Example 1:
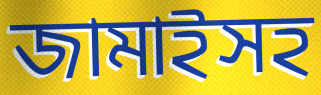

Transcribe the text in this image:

জামাইসহ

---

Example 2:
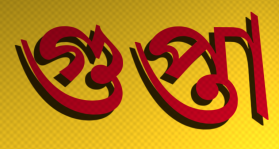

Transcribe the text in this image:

গুপ্তা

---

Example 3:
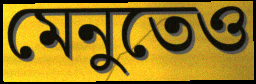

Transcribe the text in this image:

মেনুতেও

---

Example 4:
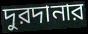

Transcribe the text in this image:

দুরদানার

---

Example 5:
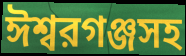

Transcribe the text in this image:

ঈশ্বরগঞ্জসহ